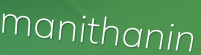
manithanin